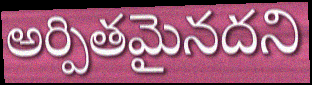
అర్పితమైనదని